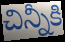
చిన్నీకి